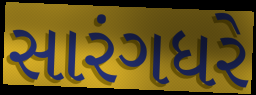
સારંગધરે